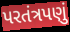
પરતંત્રપણું